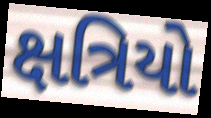
ક્ષત્રિયો